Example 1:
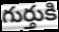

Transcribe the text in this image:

గుర్తుకి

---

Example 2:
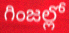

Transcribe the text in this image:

గింజల్లో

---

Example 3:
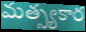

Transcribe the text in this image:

మత్స్యకార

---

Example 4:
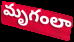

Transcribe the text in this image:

మృగంలా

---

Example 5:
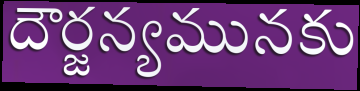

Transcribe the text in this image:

దౌర్జన్యమునకు